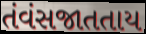
તંવંસજાતતાય